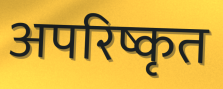
अपरिष्कृत